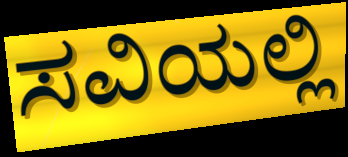
ಸವಿಯಲ್ಲಿ